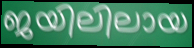
ജയിലിലായ